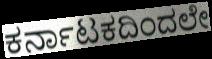
ಕರ್ನಾಟಕದಿಂದಲೇ